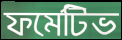
ফর্মেটিভ